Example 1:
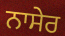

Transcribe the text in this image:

ਨਾਸੇਰ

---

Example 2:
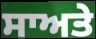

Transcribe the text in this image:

ਸਾਅਤੇ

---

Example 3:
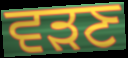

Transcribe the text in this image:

ਵੜਣ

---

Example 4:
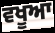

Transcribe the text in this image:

ਵਖੂਆ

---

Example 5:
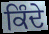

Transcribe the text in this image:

ਕਿੰਦੇ